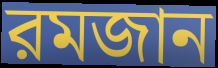
রমজান